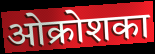
ओक्रोशका